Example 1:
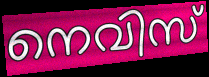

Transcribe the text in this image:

നെവിസ്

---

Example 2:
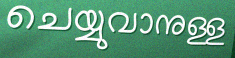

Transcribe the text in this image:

ചെയ്യുവാനുള്ള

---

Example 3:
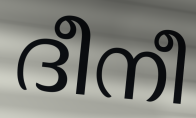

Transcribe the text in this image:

ദീനീ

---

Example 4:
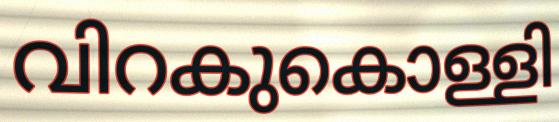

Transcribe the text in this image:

വിറകുകൊള്ളി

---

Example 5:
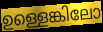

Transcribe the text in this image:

ഉള്ളെങ്കിലോ